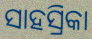
ସାହସ୍ରିକା